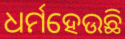
ଧର୍ମହେଉଛି